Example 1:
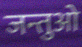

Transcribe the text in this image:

जन्तुओ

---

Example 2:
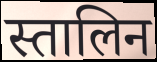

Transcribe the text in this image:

स्तालिन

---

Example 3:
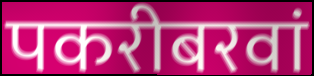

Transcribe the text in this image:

पकरीबरवां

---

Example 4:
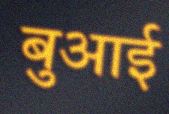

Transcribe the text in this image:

बुआई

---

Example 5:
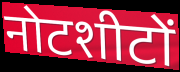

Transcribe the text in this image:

नोटशीटों